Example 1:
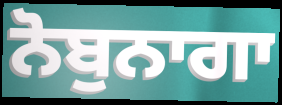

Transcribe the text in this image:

ਨੋਬੁਨਾਗਾ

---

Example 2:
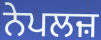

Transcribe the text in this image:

ਨੇਪਲਜ਼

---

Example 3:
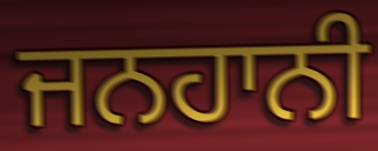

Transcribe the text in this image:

ਜਨਹਾਨੀ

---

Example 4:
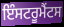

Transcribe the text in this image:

ਇੰਸਟਰੂਮੈਂਟਸ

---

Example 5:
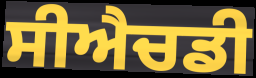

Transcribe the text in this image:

ਸੀਐਚਡੀ